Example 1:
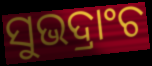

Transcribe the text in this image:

ସୁଭଦ୍ରାଂଚ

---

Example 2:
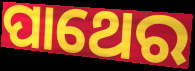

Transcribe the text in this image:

ପାଥେର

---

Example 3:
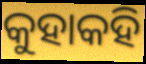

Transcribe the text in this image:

କୁହାକହି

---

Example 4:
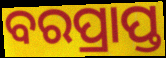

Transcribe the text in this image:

ବରପ୍ରାପ୍ତ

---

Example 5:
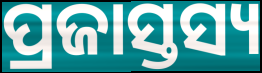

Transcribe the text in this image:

ପ୍ରଜାସ୍ତସ୍ୟ